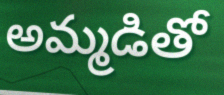
అమ్మడితో